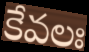
కేవలః